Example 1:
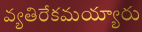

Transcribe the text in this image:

వ్యతిరేకమయ్యారు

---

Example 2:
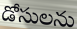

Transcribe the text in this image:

డోసులను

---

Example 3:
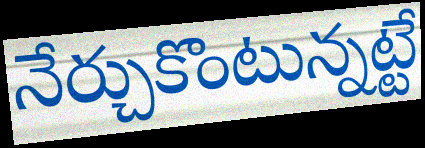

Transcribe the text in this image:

నేర్చుకొంటున్నట్టే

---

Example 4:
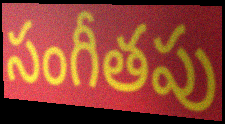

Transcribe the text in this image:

సంగీతపు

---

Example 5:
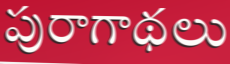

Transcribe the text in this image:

పురాగాథలు